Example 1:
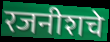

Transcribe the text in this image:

रजनीशचे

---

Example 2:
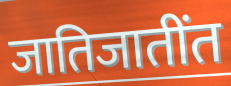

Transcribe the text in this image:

जातिजातींत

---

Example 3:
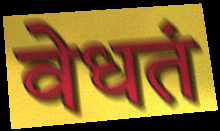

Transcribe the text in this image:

वेधतं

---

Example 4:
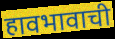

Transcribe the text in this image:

हावभावाची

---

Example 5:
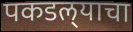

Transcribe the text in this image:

पकडल्याचा